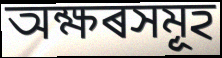
অক্ষৰসমূহ